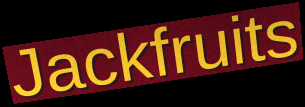
Jackfruits